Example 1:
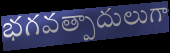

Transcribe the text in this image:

భగవత్పాదులుగా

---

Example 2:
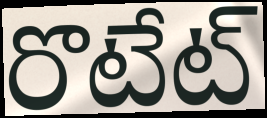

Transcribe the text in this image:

రొటేట్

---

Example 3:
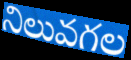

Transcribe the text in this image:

నిలువగల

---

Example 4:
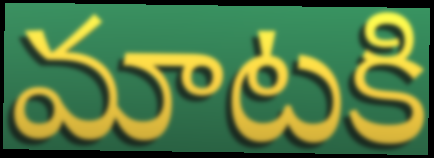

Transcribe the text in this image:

మాటకి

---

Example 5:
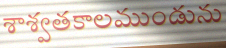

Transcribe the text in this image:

శాశ్వతకాలముండును